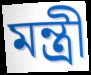
মন্ত্রী